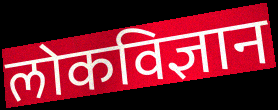
लोकविज्ञान